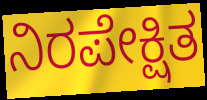
ನಿರಪೇಕ್ಷಿತ